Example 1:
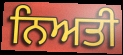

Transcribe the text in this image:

ਨਿਅਤੀ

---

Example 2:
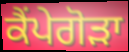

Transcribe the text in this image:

ਕੈਂਪੇਗੋੜਾ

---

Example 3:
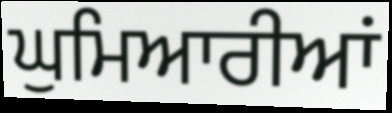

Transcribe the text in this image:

ਘੁਮਿਆਰੀਆਂ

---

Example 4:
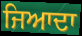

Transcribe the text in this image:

ਜਿਆਦਾ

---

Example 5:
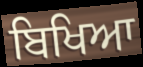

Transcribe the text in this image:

ਬਿਖਿਆ